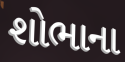
શોભાના